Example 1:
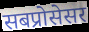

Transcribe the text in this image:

सबप्रोसेसर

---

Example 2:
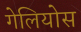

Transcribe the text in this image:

गेलियोस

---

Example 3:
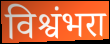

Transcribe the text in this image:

विश्वंभरा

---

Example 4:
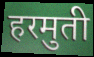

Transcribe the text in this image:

हरमुती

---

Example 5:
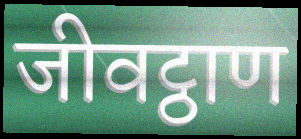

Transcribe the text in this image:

जीवट्ठाण